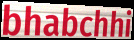
bhabchhi